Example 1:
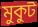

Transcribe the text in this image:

মুকুট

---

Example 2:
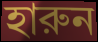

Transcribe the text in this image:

হারুন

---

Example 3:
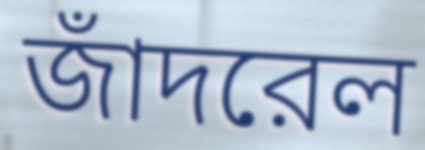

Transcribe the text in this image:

জাঁদরেল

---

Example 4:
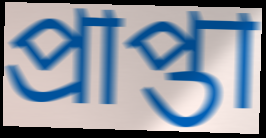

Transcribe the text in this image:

প্রাপ্তা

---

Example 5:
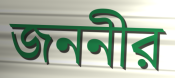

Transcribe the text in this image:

জননীর